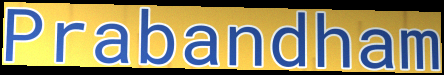
Prabandham